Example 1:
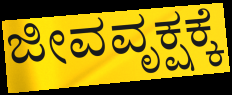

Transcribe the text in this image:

ಜೀವವೃಕ್ಷಕ್ಕೆ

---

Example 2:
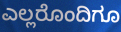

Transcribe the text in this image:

ಎಲ್ಲರೊಂದಿಗೂ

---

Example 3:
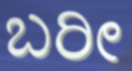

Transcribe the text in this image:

ಬರೀ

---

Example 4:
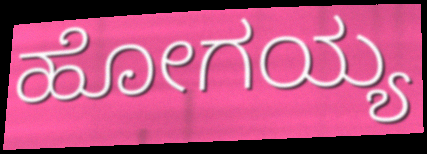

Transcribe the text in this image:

ಹೋಗಯ್ಯ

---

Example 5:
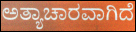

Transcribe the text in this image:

ಅತ್ಯಾಚಾರವಾಗಿದೆ